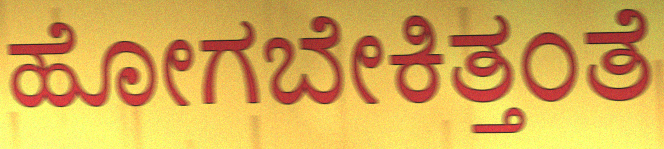
ಹೋಗಬೇಕಿತ್ತಂತೆ